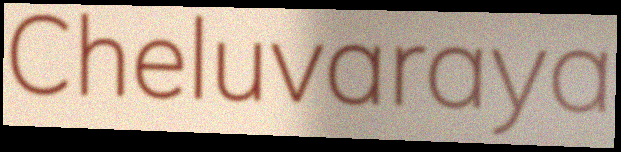
Cheluvaraya